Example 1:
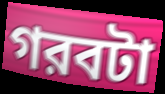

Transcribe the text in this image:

গরবটা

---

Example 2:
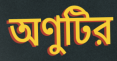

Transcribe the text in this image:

অণুটির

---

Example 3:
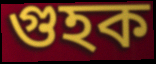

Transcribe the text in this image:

গুহক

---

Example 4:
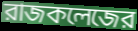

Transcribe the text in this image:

রাজকলেজের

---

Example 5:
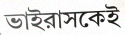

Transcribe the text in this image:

ভাইরাসকেই